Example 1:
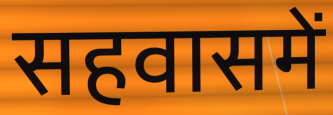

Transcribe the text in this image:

सहवासमें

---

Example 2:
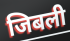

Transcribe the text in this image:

जिबली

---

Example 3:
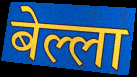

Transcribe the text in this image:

बेल्ला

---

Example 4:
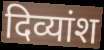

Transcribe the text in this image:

दिव्यांश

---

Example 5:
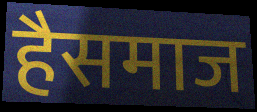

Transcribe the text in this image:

हैसमाज